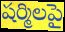
షర్మిలపై